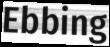
Ebbing